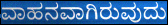
ವಾಹನವಾಗಿರುವುದು